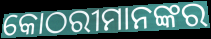
କୋଠରୀମାନଙ୍କର